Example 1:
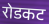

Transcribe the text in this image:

रोडकट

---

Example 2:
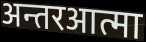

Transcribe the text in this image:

अन्तरआत्मा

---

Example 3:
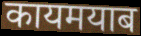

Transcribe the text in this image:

कायमयाब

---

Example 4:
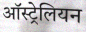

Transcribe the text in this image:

ऑस्ट्रेलियन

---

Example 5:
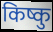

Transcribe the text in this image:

किष्कु